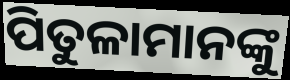
ପିତୁଳାମାନଙ୍କୁ